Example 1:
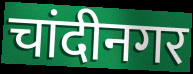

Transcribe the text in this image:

चांदीनगर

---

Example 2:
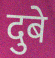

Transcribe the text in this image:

दुबे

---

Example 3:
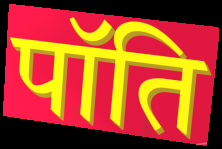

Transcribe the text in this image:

पॉति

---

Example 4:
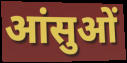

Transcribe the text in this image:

आंसुओं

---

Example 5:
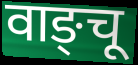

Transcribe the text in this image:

वाङ्चू